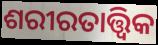
ଶରୀରତାତ୍ତ୍ଵିକ